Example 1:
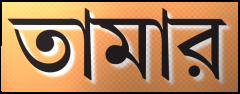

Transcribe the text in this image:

তামার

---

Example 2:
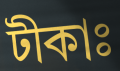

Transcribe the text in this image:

টীকাঃ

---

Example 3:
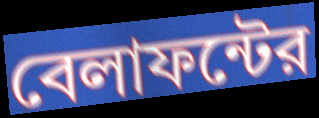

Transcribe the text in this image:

বেলাফন্টের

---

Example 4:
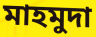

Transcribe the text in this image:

মাহমুদা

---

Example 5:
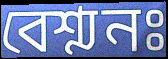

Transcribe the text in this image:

বেশ্মনঃ